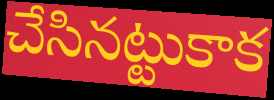
చేసినట్టుకాక